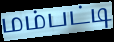
மம்பட்டி